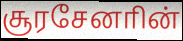
சூரசேனரின்